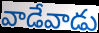
వాడేవాడు